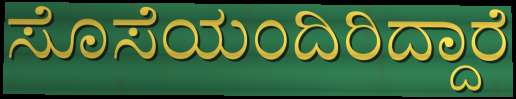
ಸೊಸೆಯಂದಿರಿದ್ದಾರೆ